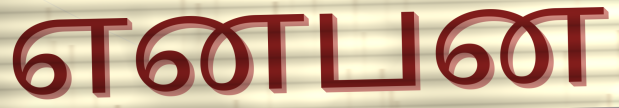
எனபன